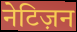
नेटिज़न